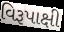
વિરૂપાક્ષી